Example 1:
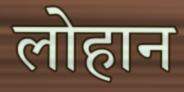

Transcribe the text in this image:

लोहान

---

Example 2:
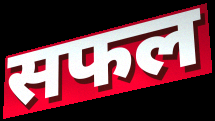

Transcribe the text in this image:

सफल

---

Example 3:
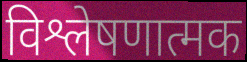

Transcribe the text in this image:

विश्लेषणात्मक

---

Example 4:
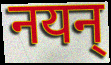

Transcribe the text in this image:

नयन्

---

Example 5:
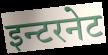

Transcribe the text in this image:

इन्टरनेट